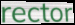
rector